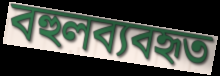
বহুলব্যবহৃত